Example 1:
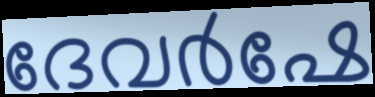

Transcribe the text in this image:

ദേവർഷേ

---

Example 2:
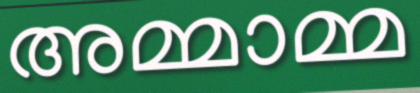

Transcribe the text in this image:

അമ്മാമ്മ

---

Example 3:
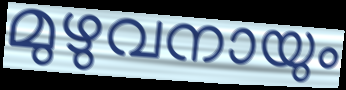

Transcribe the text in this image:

മുഴുവനായും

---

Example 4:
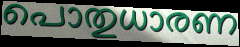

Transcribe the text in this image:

പൊതുധാരണ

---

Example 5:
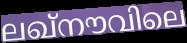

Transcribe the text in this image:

ലഖ്നൗവിലെ